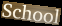
School